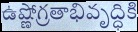
ఉష్ణోగ్రతాభివృద్ధికి